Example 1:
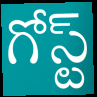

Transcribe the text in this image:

గోస్ట్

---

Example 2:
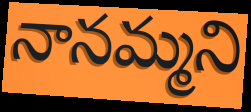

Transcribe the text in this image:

నానమ్మని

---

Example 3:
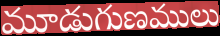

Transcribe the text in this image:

మూడుగుణములు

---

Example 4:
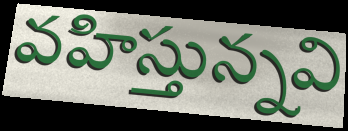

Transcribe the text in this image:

వహిస్తున్నవి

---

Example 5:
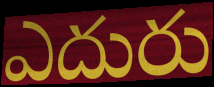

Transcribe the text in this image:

ఎదురు